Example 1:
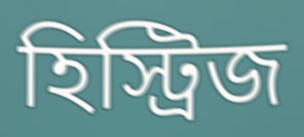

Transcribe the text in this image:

হিস্ট্রিজ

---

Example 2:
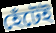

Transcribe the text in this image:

হেঁটেই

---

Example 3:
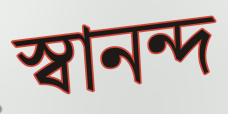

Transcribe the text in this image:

স্বানন্দ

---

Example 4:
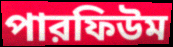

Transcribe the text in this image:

পারফিউম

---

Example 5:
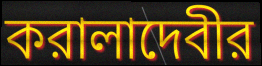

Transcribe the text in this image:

করালাদেবীর